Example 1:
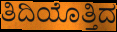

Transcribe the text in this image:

ತಿದಿಯೊತ್ತಿದ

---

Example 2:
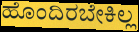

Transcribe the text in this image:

ಹೊಂದಿರಬೇಕಿಲ್ಲ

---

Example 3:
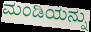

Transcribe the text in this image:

ಮಂಡಿಯನ್ನು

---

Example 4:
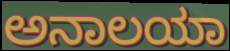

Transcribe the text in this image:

ಅನಾಲಯಾ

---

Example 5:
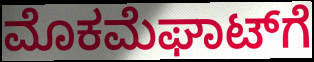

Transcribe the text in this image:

ಮೊಕಮೆಘಾಟ್‌ಗೆ